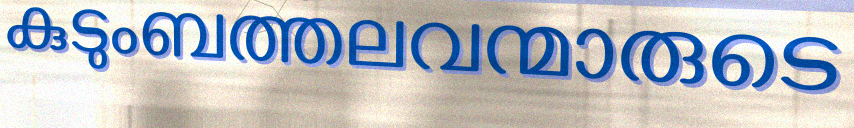
കുടുംബത്തലവന്മാരുടെ